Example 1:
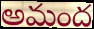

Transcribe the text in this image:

అమంద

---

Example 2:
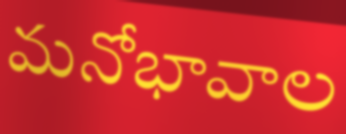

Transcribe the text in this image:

మనోభావాల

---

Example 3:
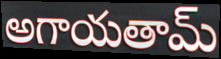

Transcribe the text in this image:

అగాయతామ్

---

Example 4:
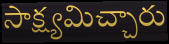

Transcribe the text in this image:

సాక్ష్యమిచ్చారు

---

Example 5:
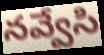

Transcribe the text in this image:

నవ్వేసి